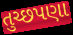
તુચ્છપણા